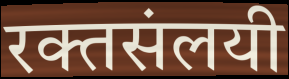
रक्तसंलयी